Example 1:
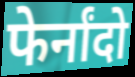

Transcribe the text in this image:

फेर्नांदो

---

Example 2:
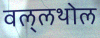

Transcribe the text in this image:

वल्लथोल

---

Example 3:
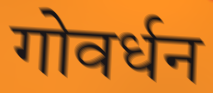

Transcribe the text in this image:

गोवर्धन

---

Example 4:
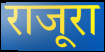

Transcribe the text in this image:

राजूरा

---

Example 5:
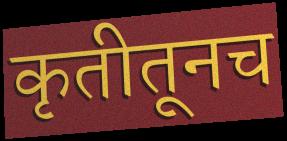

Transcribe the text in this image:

कृतीतूनच